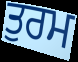
ਤੁਰਮ